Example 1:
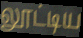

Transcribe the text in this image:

லூட்டிய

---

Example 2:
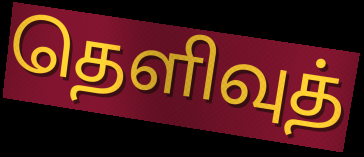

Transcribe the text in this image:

தெளிவுத்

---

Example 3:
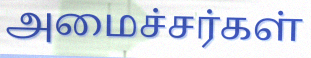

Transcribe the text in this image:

அமைச்சர்கள்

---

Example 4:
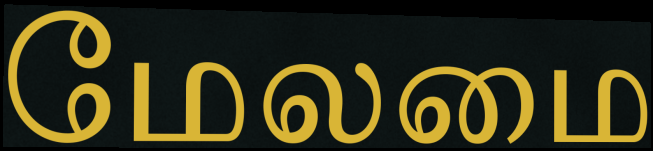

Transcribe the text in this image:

மேலமை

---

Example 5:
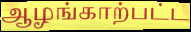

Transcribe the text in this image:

ஆழங்காற்பட்ட